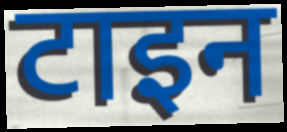
टाइन